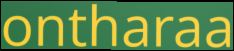
ontharaa